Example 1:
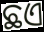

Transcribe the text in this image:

ଛଏ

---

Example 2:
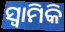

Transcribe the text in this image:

ସ୍ୱାମିକି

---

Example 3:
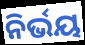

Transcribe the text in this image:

ନିର୍ଭୟ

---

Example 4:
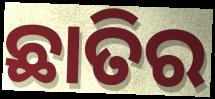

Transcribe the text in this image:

ଛାତିର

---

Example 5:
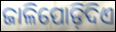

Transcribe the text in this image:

ଜାଳିପୋଡ଼ିଦିଏ